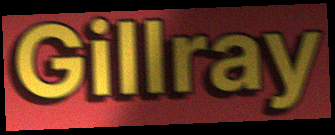
Gillray